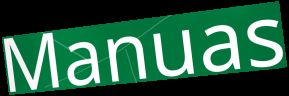
Manuas